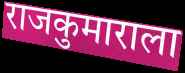
राजकुमाराला